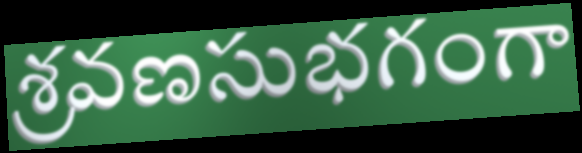
శ్రవణసుభగంగా